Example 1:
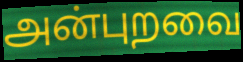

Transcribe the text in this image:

அன்புறவை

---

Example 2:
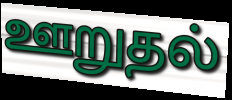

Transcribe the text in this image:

ஊறுதல்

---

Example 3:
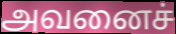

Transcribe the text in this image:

அவனைச்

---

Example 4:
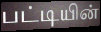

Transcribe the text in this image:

பட்டியின்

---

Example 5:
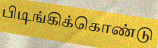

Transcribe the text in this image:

பிடிங்கிக்கொண்டு